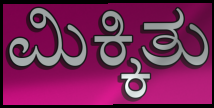
ಮಿಕ್ಕಿತು